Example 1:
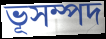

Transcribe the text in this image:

ভূসম্পদ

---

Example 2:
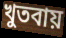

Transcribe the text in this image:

খুতবায়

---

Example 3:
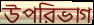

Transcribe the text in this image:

উপরিভাগ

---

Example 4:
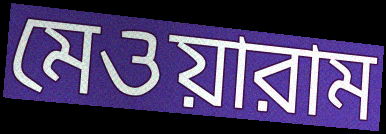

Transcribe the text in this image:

মেওয়ারাম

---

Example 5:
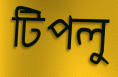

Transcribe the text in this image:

টিপলু